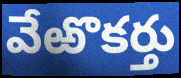
వేఱొకర్తు